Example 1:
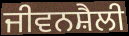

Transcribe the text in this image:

ਜੀਵਨਸ਼ੈਲੀ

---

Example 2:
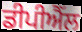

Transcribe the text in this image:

ਡੀਪੀਐੱਲ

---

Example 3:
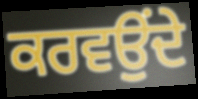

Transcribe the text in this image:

ਕਰਵਉਂਦੇ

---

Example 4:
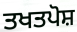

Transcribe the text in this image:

ਤਖਤਪੋਸ਼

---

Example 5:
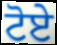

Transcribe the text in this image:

ਟੋਏ